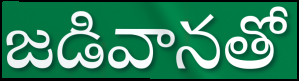
జడివానతో